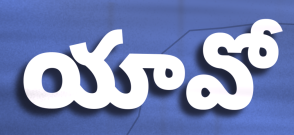
యావో